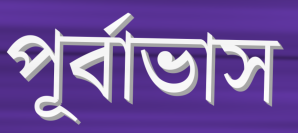
পূৰ্বাভাস